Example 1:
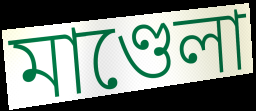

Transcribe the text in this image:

মাণ্ডেলা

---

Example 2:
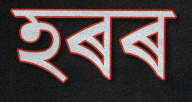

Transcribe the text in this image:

হৰৰ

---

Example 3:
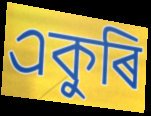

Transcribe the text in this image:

একুৰি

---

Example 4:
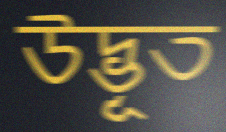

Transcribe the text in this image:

উদ্ভূত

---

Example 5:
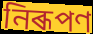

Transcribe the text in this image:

নিৰূপণ